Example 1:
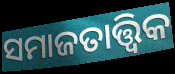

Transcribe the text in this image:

ସମାଜତାତ୍ତ୍ୱିକ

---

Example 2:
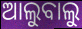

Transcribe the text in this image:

ଆଲୁବାଲୁ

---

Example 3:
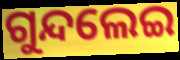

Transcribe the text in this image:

ଗୁନ୍ଦଲେଇ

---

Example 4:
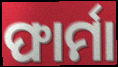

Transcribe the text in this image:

ଫାର୍ମା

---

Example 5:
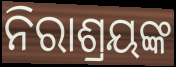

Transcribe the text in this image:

ନିରାଶ୍ରୟଙ୍କ